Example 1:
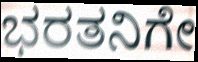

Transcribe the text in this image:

ಭರತನಿಗೇ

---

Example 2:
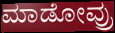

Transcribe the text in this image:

ಮಾಡೋವ್ರು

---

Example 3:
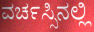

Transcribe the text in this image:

ವರ್ಚಸ್ಸಿನಲ್ಲಿ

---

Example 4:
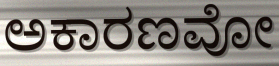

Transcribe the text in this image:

ಅಕಾರಣವೋ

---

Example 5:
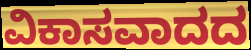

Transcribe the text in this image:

ವಿಕಾಸವಾದದ